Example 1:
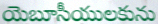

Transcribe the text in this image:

యెబూసీయులకును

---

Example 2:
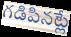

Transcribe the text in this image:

గడిపినట్లే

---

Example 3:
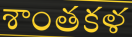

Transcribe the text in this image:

శాంతకళ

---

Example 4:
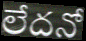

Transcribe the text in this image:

లేదనో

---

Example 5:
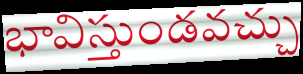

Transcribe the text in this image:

భావిస్తుండవచ్చు